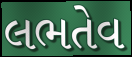
લભતેવ